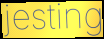
jesting